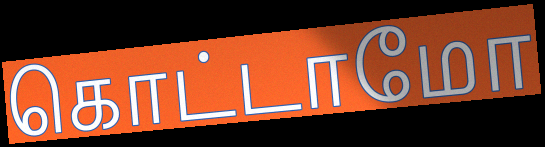
கொட்டாமோ